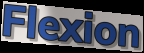
Flexion